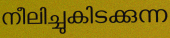
നീലിച്ചുകിടക്കുന്ന